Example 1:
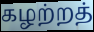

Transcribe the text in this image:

கழற்றத்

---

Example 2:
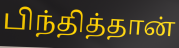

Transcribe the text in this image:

பிந்தித்தான்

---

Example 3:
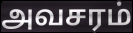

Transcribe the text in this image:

அவசரம்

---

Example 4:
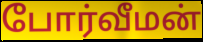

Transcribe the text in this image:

போர்வீமன்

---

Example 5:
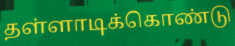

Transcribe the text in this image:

தள்ளாடிக்கொண்டு